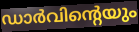
ഡാർവിന്റെയും